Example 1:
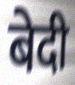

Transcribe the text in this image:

बेदी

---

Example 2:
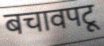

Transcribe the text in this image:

बचावपटू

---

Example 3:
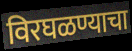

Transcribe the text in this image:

विरघळण्याचा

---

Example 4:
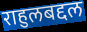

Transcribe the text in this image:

राहुलबद्दल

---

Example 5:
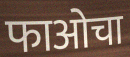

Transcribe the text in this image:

फाओचा